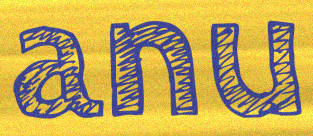
anu